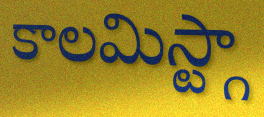
కాలమిస్ట్గా